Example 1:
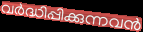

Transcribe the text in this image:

വർദ്ധിപ്പിക്കുന്നവൻ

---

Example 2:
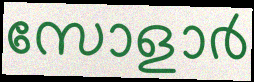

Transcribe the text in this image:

സോളാർ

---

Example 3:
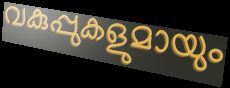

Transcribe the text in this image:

വകുപ്പുകളുമായും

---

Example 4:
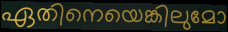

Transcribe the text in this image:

ഏതിനെയെങ്കിലുമോ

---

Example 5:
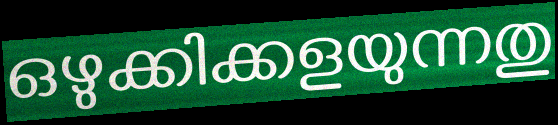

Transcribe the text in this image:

ഒഴുക്കിക്കളയുന്നതു